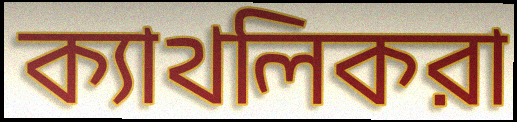
ক্যাথলিকরা